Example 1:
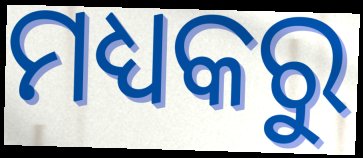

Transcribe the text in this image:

ମଧ୍ୟକରୁ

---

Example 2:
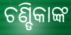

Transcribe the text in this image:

ଚଣ୍ଡିକାଙ୍କ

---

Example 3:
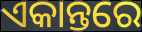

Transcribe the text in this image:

ଏକାନ୍ତରେ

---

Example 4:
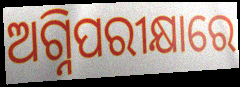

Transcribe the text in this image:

ଅଗ୍ନିପରୀକ୍ଷାରେ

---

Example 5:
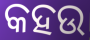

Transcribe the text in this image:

କହଉ